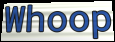
Whoop